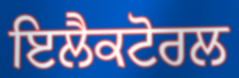
ਇਲੈਕਟੋਰਲ